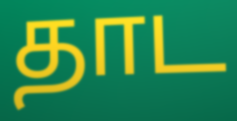
தாட